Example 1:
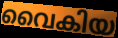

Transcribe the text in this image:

വൈകിയ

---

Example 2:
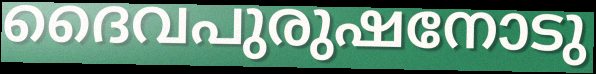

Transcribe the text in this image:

ദൈവപുരുഷനോടു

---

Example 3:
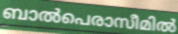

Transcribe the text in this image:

ബാൽപെരാസീമിൽ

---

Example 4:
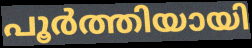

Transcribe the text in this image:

പൂർത്തിയായി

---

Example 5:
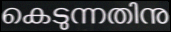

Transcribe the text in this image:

കെടുന്നതിനു